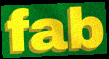
fab